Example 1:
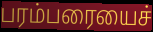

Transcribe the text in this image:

பரம்பரையைச்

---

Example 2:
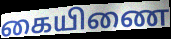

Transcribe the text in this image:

கையிணை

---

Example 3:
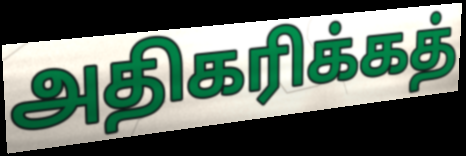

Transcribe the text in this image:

அதிகரிக்கத்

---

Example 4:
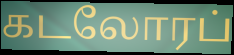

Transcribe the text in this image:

கடலோரப்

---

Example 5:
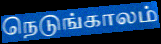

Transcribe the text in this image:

நெடுங்காலம்